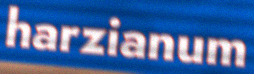
harzianum